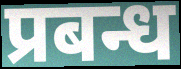
प्रबन्ध